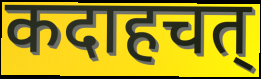
कदाहचत्